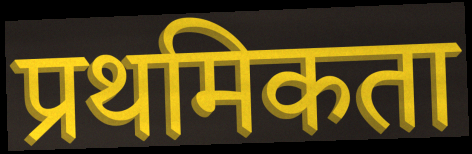
प्रथमिकता